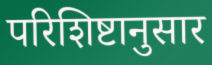
परिशिष्टानुसार